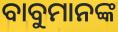
ବାବୁମାନଙ୍କ